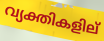
വ്യക്തികളില്